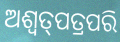
ଅଶ୍ଵତ୍‌ପତ୍ରପରି